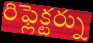
రిఫ్లెక్టర్ను